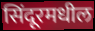
सिंदूरमधील